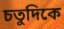
চতুদিকে